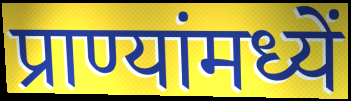
प्राण्यांमध्यें